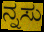
ನ್ನಸು